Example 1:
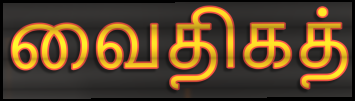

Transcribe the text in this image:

வைதிகத்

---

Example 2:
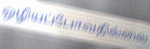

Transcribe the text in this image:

ஒழியப்போவதில்லை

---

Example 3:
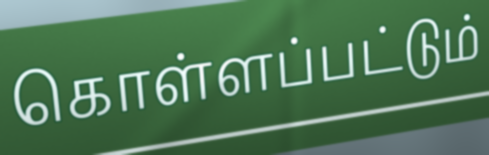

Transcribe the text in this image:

கொள்ளப்பட்டும்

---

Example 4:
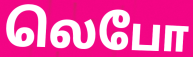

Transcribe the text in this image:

லெபோ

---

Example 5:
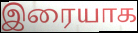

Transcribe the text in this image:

இரையாக